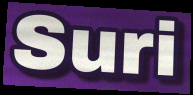
Suri